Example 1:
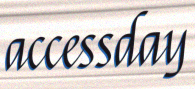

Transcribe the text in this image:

accessday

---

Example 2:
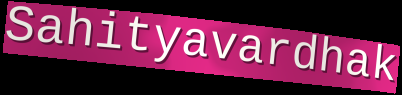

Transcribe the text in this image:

Sahityavardhak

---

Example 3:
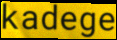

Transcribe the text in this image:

kadege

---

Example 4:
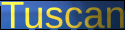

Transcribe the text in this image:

Tuscan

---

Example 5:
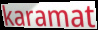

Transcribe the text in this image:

karamat